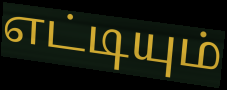
எட்டியும்